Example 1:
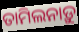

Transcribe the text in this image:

ତାମିଲନାଡ଼ୁ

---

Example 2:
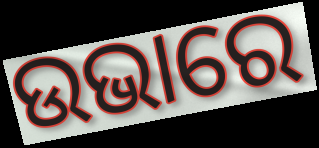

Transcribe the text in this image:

ଉଭାରେ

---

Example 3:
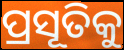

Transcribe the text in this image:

ପ୍ରସୂତିକୁ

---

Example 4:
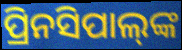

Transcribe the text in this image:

ପ୍ରିନସିପାଲ୍‍ଙ୍କ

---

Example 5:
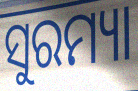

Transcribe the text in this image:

ସୁରମ୍ୟା